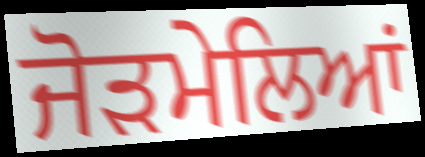
ਜੋੜਮੇਲਿਆਂ